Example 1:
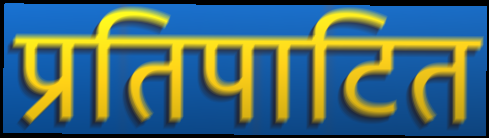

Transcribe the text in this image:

प्रतिपाटित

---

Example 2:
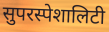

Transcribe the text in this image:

सुपरस्पेशालिटी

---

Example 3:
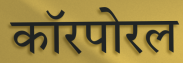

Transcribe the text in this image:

कॉरपोरल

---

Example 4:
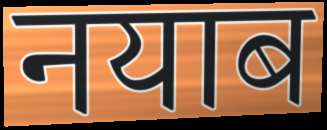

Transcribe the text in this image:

नयाब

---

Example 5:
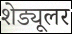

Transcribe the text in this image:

शेड्यूलर